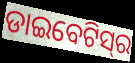
ଡାଇବେଟିସ୍‌ର